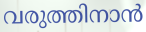
വരുത്തിനാൻ